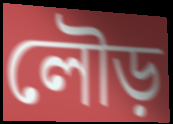
লৌড়